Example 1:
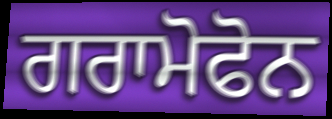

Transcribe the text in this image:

ਗਰਾਮੋਫੋਨ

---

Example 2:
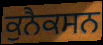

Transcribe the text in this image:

ਕੁਨੈਕਸਨ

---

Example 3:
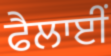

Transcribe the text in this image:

ਫੈਲਾਈਂ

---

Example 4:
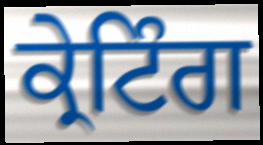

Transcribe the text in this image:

ਕ੍ਰੇਟਿੰਗ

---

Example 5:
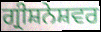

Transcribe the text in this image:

ਗ੍ਰੀਸ਼ਨੇਸ਼ਵਰ